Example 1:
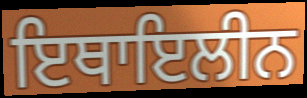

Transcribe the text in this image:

ਇਥਾਇਲੀਨ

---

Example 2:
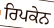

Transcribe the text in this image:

ਰਿਪਕੇਨ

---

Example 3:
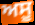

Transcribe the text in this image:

ਅਸੂ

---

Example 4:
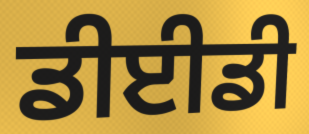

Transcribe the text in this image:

ਡੀਈਡੀ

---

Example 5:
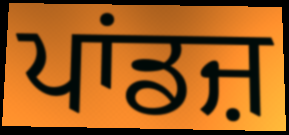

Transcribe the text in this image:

ਪਾਂਡਜ਼